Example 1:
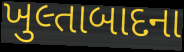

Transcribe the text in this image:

ખુલ્તાબાદના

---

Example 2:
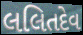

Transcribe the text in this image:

લલિતદેવ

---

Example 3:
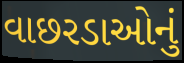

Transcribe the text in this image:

વાછરડાઓનું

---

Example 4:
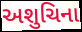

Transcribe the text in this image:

અશુચિના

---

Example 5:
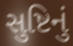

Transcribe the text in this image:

સુષ્ટિનું